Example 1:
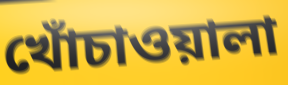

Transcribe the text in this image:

খোঁচাওয়ালা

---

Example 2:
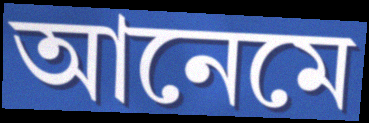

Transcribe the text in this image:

আনেমে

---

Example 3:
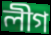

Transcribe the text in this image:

লীগ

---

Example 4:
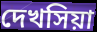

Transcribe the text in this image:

দেখসিয়া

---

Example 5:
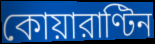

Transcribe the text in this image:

কোয়ারাণ্টিন